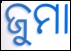
ଜୁମା